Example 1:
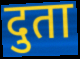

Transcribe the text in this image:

दुता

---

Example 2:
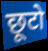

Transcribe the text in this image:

छूटो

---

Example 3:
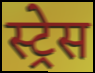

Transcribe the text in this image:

स्ट्रेस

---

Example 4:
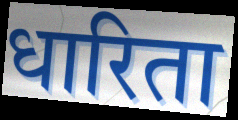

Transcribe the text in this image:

धारिता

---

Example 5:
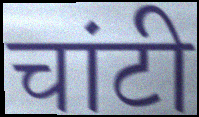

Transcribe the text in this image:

चांटी